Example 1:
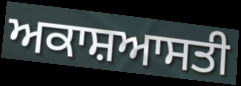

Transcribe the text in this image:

ਅਕਾਸ਼ਆਸਤੀ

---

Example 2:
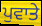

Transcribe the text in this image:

ਪੁਵਾਤੇ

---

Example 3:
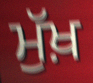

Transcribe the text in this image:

ਮੁੱਖ਼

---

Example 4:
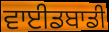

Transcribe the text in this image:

ਵਾਈਡਬਾਡੀ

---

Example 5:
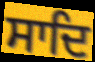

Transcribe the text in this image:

ਸਾਦਿ